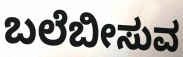
ಬಲೆಬೀಸುವ